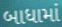
બાધામાં